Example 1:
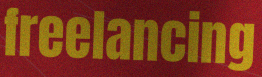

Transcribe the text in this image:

freelancing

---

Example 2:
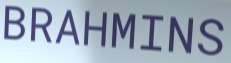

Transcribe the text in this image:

BRAHMINS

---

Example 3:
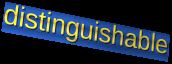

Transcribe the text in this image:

distinguishable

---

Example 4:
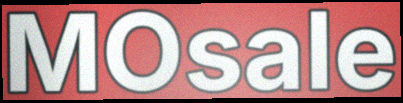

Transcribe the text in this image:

MOsale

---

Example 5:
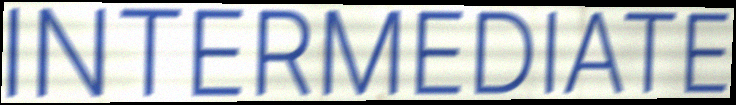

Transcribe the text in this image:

INTERMEDIATE